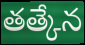
తత్కేన